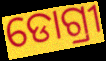
ଡୋଗ୍ରୀ